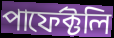
পার্ফেক্টলি